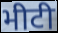
भीटी